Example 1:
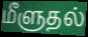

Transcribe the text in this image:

மீளுதல்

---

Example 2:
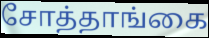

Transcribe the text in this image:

சோத்தாங்கை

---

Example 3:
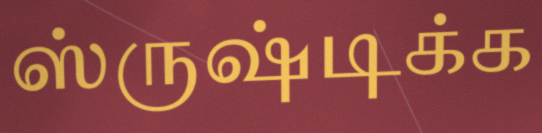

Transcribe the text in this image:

ஸ்ருஷ்டிக்க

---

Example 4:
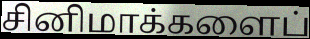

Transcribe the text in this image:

சினிமாக்களைப்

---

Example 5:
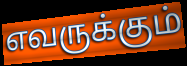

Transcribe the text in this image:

எவருக்கும்